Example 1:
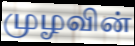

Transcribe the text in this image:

முழவின்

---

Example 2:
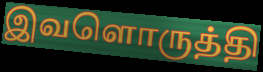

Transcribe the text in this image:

இவளொருத்தி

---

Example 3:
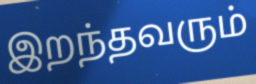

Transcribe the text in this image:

இறந்தவரும்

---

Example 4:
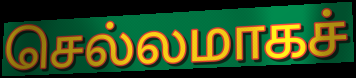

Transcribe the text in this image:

செல்லமாகச்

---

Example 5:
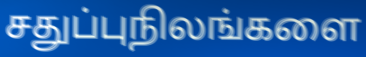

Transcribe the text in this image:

சதுப்புநிலங்களை